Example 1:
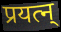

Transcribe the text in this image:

प्रयत्न्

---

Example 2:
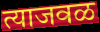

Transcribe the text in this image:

त्याजवळ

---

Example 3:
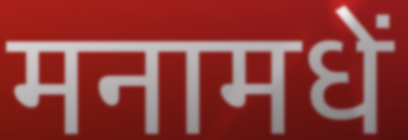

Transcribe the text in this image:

मनामधें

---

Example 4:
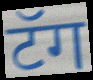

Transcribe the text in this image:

टॅग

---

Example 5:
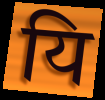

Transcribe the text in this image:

यि